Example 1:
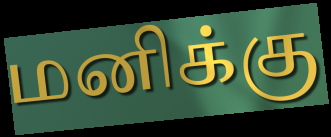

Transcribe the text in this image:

மனிக்கு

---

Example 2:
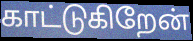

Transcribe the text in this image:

காட்டுகிறேன்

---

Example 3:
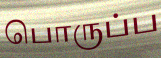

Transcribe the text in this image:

பொருப்ப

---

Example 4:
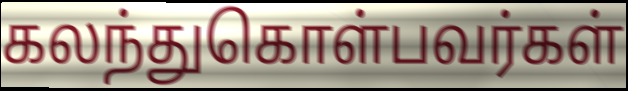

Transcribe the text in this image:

கலந்துகொள்பவர்கள்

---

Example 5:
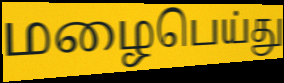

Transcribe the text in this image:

மழைபெய்து